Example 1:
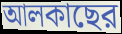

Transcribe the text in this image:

আলকাছের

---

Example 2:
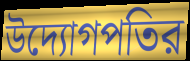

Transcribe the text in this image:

উদ্যোগপতির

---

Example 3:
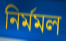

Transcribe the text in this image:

নির্মমল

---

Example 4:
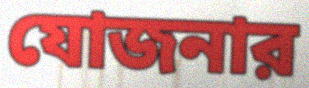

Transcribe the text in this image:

যোজনার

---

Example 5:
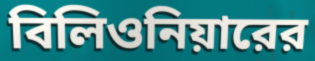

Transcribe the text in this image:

বিলিওনিয়ারের